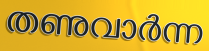
തണുവാർന്ന